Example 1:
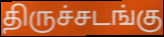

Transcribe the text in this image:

திருச்சடங்கு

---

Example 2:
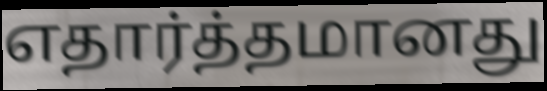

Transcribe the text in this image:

எதார்த்தமானது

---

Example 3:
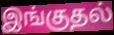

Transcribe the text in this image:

இங்குதல்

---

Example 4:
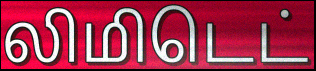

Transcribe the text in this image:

லிமிடெட்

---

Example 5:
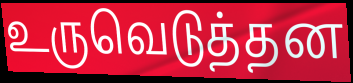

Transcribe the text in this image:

உருவெடுத்தன